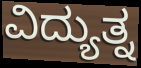
ವಿದ್ಯುತ್ನ